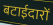
बटाईदारों